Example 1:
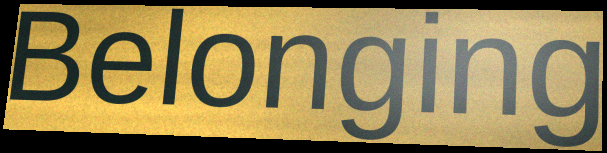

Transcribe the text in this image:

Belonging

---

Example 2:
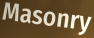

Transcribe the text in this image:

Masonry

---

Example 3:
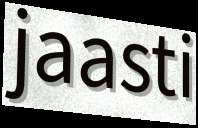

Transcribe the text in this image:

jaasti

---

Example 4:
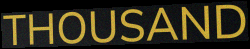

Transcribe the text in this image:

THOUSAND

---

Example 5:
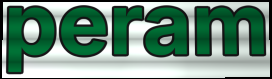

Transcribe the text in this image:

peram